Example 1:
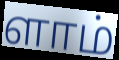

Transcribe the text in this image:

ளாம்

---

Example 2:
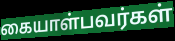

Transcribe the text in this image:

கையாள்பவர்கள்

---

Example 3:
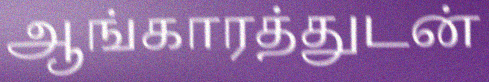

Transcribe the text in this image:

ஆங்காரத்துடன்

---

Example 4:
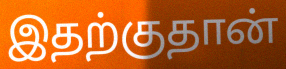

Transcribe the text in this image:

இதற்குதான்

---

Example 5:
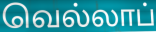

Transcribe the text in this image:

வெல்லாப்